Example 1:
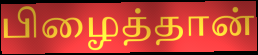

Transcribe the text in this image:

பிழைத்தான்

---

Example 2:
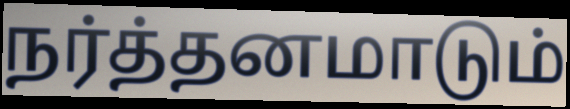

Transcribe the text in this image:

நர்த்தனமாடும்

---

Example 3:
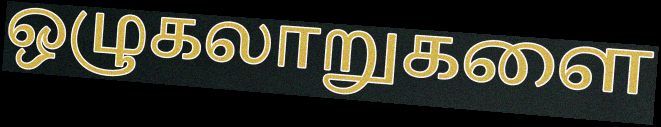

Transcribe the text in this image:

ஒழுகலாறுகளை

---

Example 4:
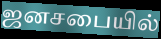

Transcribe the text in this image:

ஜனசபையில்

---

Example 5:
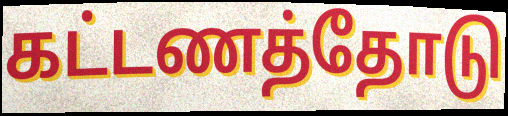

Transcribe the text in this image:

கட்டணத்தோடு